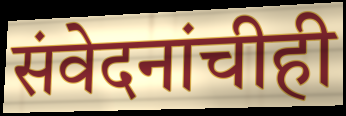
संवेदनांचीही